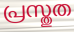
പ്രസ്തുത